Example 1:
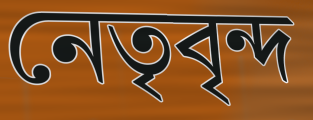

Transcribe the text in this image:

নেতৃবৃন্দ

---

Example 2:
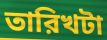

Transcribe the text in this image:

তারিখটা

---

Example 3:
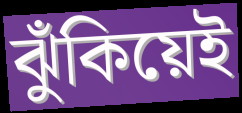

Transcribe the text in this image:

ঝুঁকিয়েই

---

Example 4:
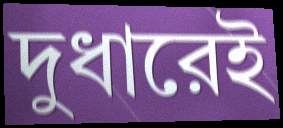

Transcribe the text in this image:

দুধারেই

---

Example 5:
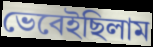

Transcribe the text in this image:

ভেবেইছিলাম